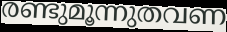
രണ്ടുമൂന്നുതവണ